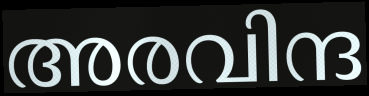
അരവിന്ദ